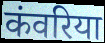
कंवरिया